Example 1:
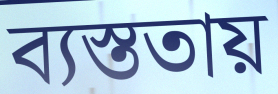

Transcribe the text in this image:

ব্যস্ততায়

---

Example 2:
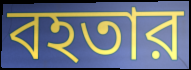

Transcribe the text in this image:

বহতার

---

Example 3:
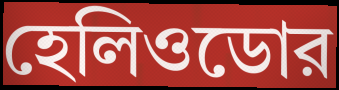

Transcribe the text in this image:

হেলিওডোর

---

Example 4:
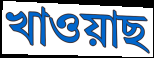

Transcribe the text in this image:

খাওয়াছ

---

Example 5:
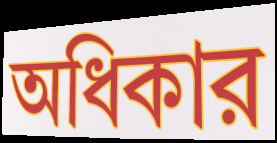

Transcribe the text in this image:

অধিকার